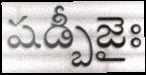
షడ్బీజైః